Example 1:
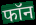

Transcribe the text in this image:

फॉन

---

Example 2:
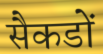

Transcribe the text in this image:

सैकडों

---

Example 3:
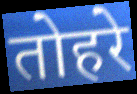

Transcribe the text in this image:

तोहरे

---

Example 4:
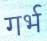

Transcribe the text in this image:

गर्भ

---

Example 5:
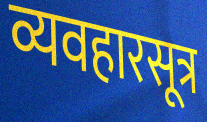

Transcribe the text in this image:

व्यवहारसूत्र